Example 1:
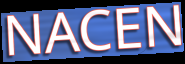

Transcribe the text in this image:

NACEN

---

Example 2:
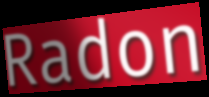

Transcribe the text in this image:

Radon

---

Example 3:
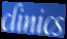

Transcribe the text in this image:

clinics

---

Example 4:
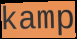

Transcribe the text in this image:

kamp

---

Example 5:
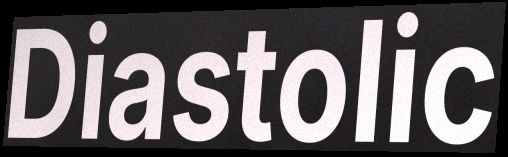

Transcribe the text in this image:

Diastolic